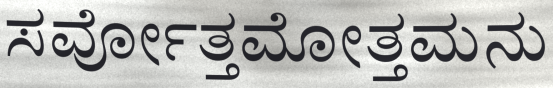
ಸರ್ವೋತ್ತಮೋತ್ತಮನು